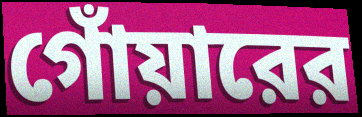
গোঁয়ারের